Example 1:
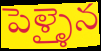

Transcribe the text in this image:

పెళ్ళైన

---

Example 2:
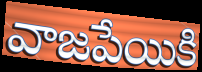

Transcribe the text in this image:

వాజపేయికి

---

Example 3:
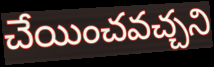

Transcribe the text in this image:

చేయించవచ్చని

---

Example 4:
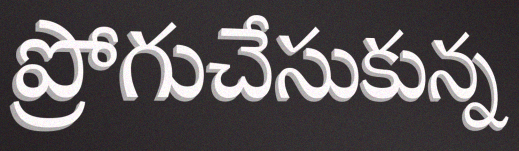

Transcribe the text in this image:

ప్రోగుచేసుకున్న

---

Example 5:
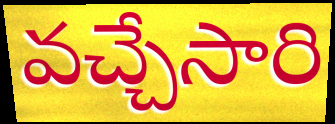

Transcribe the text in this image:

వచ్చేసారి